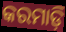
କରମାଡ଼ି